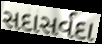
સદાસર્વદા